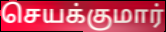
செயக்குமார்